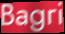
Bagri